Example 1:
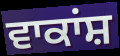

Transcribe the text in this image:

ਵਾਕਾਂਸ਼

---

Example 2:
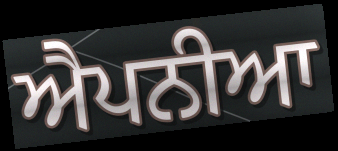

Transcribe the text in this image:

ਐਪਨੀਆ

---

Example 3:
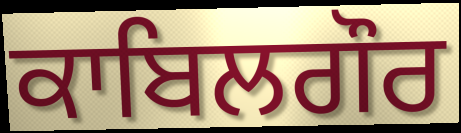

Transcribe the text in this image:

ਕਾਬਿਲਗੌਰ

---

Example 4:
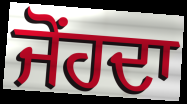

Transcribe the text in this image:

ਜੋਂਹਦਾ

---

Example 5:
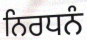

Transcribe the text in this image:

ਨਿਰਧਨੰ